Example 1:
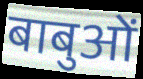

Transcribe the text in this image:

बाबुओं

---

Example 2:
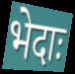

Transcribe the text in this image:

भेदाः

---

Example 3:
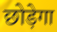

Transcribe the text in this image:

छोड़ेगा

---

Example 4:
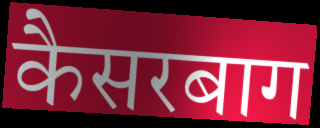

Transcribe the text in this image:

कैसरबाग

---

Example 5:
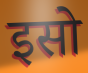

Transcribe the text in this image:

इसो